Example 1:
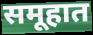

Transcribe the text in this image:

समूहात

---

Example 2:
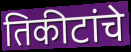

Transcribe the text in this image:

तिकीटांचे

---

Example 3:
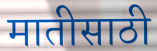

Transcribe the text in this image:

मातीसाठी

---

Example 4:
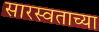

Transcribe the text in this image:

सारस्वताच्या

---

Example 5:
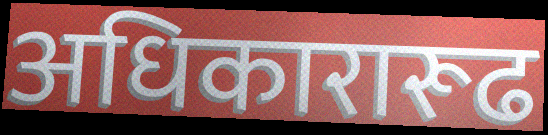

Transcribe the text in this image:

अधिकारारूढ